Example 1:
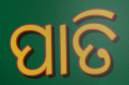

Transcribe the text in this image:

ପାତି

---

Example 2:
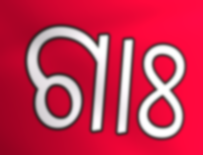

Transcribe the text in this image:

ଗାଃ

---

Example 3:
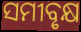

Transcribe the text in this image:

ସମୀବୃକ୍ଷ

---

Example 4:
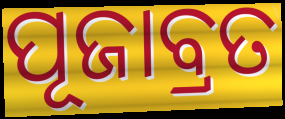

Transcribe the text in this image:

ପୂଜାବ୍ରତ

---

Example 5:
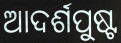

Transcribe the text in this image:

ଆଦର୍ଶପୁଷ୍ଟ